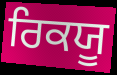
ਰਿਕਯੂ